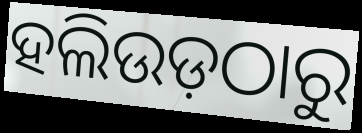
ହଲିଉଡ଼ଠାରୁ